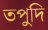
তপুদি